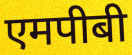
एमपीबी